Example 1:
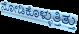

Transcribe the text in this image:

ನೋಡಿಕೊಳ್ಳುತ್ತಿತ್ತು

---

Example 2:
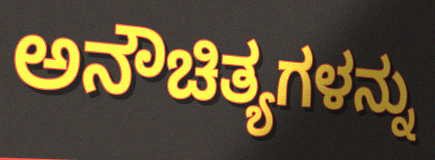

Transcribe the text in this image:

ಅನೌಚಿತ್ಯಗಳನ್ನು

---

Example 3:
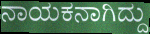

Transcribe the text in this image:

ನಾಯಕನಾಗಿದ್ದು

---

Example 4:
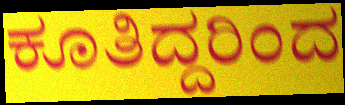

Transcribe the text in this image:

ಕೂತಿದ್ದರಿಂದ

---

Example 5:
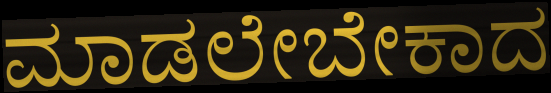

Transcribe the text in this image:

ಮಾಡಲೇಬೇಕಾದ